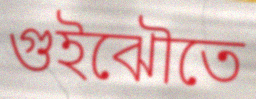
গুইঝৌতে